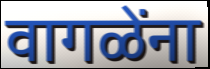
वागळेंना